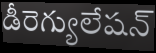
డీరెగ్యులేషన్